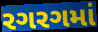
રગરગમાં